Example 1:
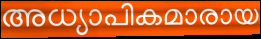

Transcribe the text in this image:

അധ്യാപികമാരായ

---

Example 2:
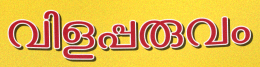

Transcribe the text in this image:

വിളപ്പരുവം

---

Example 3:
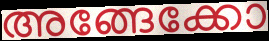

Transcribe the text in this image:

അങ്ങേക്കോ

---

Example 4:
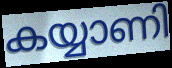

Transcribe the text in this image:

കയ്യാണി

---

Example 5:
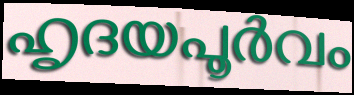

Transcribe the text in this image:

ഹൃദയപൂർവം